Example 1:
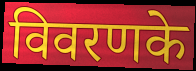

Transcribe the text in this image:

विवरणके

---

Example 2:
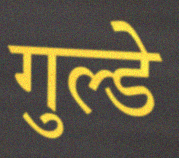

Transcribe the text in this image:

गुल्डे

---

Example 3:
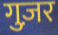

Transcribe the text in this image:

गुज़र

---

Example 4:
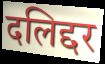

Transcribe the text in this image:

दलिद्दर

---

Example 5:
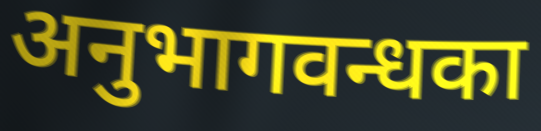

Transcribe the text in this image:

अनुभागवन्धका